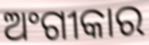
ଅଂଗୀକାର